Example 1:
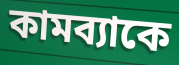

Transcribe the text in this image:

কামব্যাকে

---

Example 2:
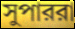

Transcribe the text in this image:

সুপাররা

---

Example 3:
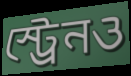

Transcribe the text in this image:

স্ট্রেনও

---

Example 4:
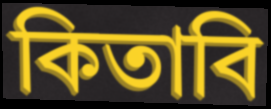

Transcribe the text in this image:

কিতাবি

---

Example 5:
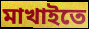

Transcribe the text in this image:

মাখাইতে